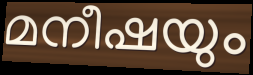
മനീഷയും